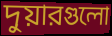
দুয়ারগুলো